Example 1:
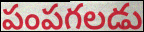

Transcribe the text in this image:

పంపగలడు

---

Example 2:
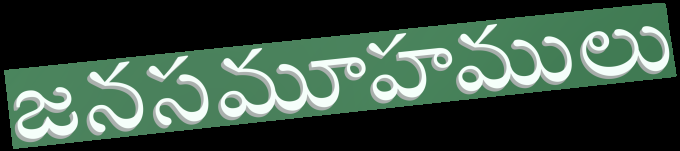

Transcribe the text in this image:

జనసమూహములు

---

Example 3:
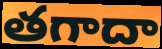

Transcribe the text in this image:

తగాదా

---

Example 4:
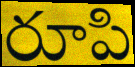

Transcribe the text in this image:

రూపి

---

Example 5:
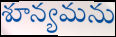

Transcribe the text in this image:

శూన్యమను